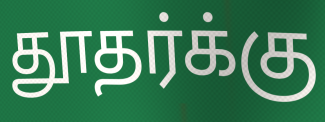
தூதர்க்கு